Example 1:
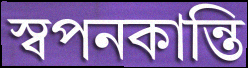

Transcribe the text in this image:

স্বপনকান্তি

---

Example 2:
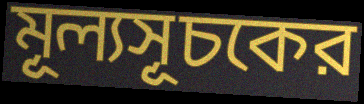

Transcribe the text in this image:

মূল্যসূচকের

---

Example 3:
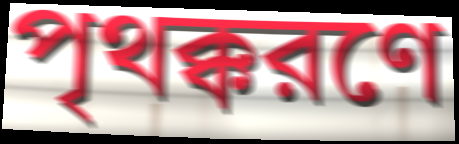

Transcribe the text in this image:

পৃথক্করণে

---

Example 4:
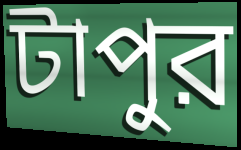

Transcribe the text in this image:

টাপুর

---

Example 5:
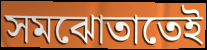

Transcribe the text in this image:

সমঝোতাতেই